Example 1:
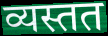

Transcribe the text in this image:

व्यस्तत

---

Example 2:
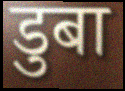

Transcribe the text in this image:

डुबा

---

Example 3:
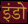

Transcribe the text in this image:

इंडो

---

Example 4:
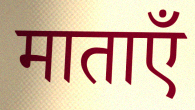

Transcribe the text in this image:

माताएँ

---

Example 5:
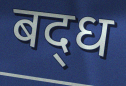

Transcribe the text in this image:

बद्ध